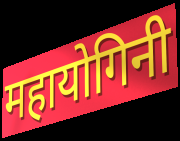
महायोगिनी